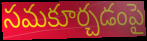
సమకూర్చడంపై